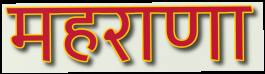
महराणा